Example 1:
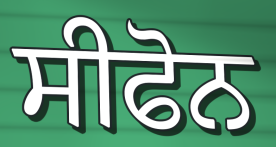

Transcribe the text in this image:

ਸੀਫੋਨ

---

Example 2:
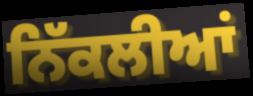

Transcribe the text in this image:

ਨਿੱਕਲੀਆਂ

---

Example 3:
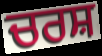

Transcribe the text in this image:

ਚਰਸ਼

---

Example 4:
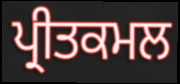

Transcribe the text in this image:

ਪ੍ਰੀਤਕਮਲ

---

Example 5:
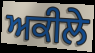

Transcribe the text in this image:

ਅਕੀਲੇ